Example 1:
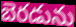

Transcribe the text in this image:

బెరడును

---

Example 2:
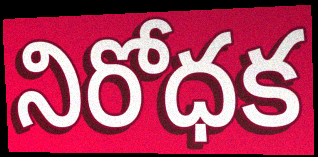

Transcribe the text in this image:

నిరోధక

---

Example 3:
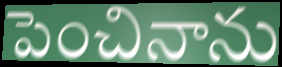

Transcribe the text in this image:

పెంచినాను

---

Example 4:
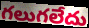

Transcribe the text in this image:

గలుగలేదు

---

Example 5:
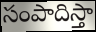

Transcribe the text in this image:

సంపాదిస్తా